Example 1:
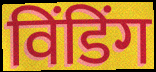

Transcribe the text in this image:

विंडिंग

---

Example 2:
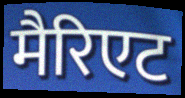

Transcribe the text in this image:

मैरिएट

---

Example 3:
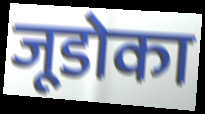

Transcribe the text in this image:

जूडोका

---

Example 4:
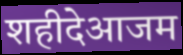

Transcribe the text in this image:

शहीदेआजम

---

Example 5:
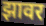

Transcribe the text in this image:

झावर